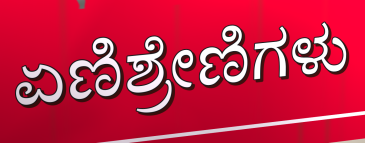
ಏಣಿಶ್ರೇಣಿಗಳು